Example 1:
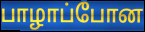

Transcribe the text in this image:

பாழாப்போன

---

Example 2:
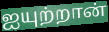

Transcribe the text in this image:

ஐயுற்றான்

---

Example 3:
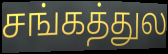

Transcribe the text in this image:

சங்கத்துல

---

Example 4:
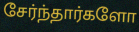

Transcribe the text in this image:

சேர்ந்தார்களோ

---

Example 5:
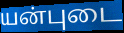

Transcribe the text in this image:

யன்புடை